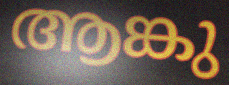
ആങ്കു